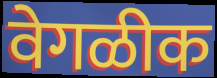
वेगळीक